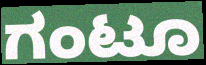
ಗಂಟೂ